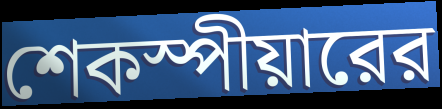
শেকস্পীয়ারের